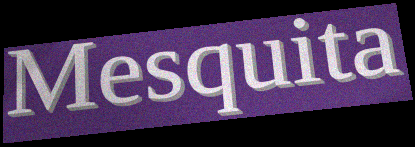
Mesquita